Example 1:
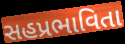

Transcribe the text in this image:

સહપ્રભાવિતા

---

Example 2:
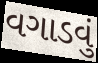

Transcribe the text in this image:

વગાડવું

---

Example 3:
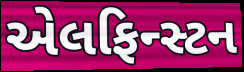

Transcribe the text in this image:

એલફિન્સ્ટન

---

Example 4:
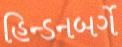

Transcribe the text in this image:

હિન્ડનબર્ગે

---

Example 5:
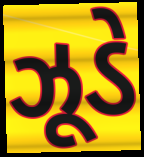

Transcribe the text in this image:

ઝૂડે